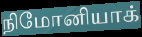
நிமோனியாக்